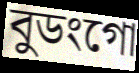
বুডংগো